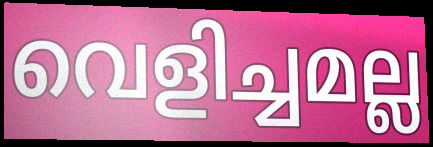
വെളിച്ചമല്ല